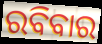
ରବିବାର